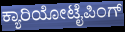
ಕ್ಯಾರಿಯೋಟೈಪಿಂಗ್